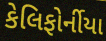
કેલિફોર્નીયા